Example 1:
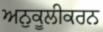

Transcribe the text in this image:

ਅਨੁਕੂਲੀਕਰਨ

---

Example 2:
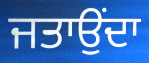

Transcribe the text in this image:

ਜਤਾਉਂਦਾ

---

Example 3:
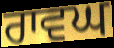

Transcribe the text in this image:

ਰਾਵਘ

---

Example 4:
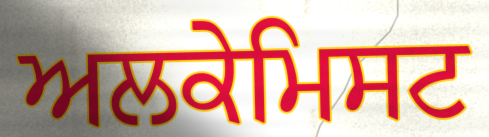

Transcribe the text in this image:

ਅਲਕੇਮਿਸਟ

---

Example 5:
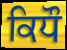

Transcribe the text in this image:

ਕਿਧੌ